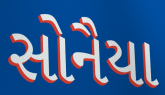
સોનૈયા